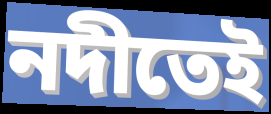
নদীতেই